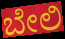
ಬೇಲಿ